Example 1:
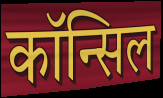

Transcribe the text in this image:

कॉन्सिल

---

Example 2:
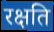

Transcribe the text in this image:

रक्षति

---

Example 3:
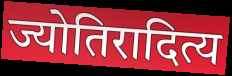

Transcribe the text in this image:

ज्योतिरादित्य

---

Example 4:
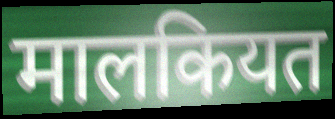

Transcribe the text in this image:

मालकियत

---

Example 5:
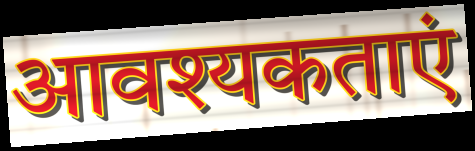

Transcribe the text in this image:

आवश्‍यकताएं